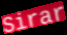
Sirar